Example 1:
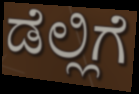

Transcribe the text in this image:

ಡೆಲ್ಲಿಗೆ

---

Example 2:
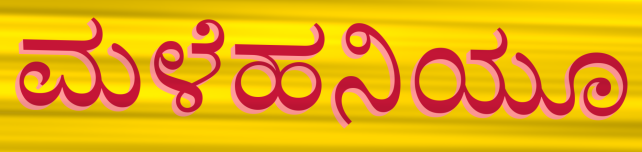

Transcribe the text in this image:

ಮಳೆಹನಿಯೂ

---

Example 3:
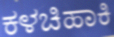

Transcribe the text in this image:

ಕಳಚಿಹಾಕಿ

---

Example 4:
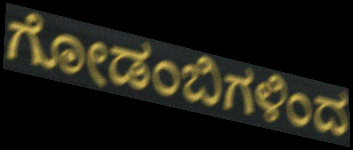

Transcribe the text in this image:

ಗೋಡಂಬಿಗಳಿಂದ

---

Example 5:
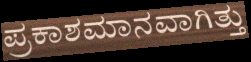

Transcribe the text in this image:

ಪ್ರಕಾಶಮಾನವಾಗಿತ್ತು